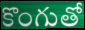
కొంగుతో